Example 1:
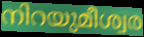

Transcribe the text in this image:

നിറയുമീശ്വര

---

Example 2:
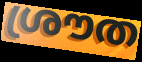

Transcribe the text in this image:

ശ്രൗത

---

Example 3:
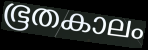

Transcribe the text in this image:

ഭൂതകാലം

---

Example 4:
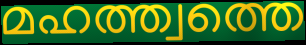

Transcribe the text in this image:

മഹത്ത്വത്തെ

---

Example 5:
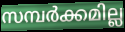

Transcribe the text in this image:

സമ്പർക്കമില്ല